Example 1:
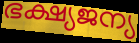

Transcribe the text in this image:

ഭക്ഷ്യജന്യ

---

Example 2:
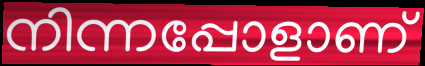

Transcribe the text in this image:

നിന്നപ്പോളാണ്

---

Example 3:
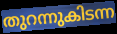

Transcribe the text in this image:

തുറന്നുകിടന്ന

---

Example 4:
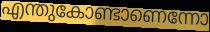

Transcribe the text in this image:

എന്തുകോണ്ടാണെന്നോ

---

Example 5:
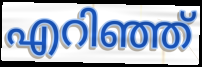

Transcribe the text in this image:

എറിഞ്ഞ്